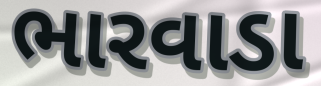
ભારવાડા